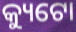
କ୍ୟୁଟୋ